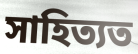
সাহিত্যত